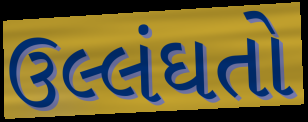
ઉલ્લંઘતો